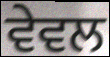
ਵੇਵਲ